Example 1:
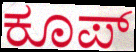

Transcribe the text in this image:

ಕೂಪ್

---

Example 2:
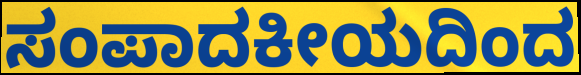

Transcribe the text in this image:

ಸಂಪಾದಕೀಯದಿಂದ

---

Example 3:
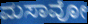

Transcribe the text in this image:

ಮಸಾವೋ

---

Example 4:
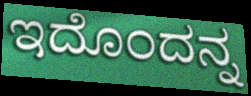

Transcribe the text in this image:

ಇದೊಂದನ್ನ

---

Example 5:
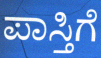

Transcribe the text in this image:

ಪಾಸ್ತಿಗೆ